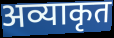
अव्याकृत